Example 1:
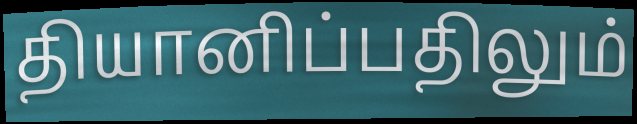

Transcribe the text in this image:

தியானிப்பதிலும்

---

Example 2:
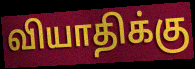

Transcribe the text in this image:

வியாதிக்கு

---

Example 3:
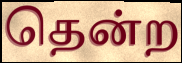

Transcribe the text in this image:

தென்ற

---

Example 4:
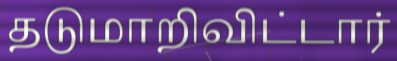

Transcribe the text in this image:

தடுமாறிவிட்டார்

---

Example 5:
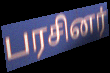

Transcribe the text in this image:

பரசினர்